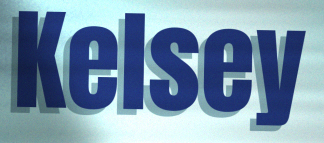
Kelsey